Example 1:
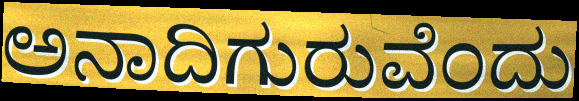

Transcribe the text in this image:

ಅನಾದಿಗುರುವೆಂದು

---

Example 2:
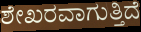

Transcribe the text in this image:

ಶೇಖರವಾಗುತ್ತಿದೆ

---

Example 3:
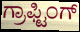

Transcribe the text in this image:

ಗ್ರಾಫ್ಟಿಂಗ್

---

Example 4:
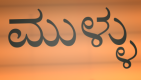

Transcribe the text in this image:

ಮುಳ್ಳು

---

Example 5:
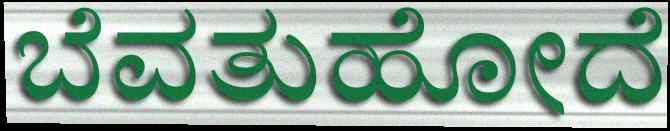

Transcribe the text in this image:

ಬೆವತುಹೋದೆ